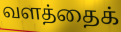
வளத்தைக்